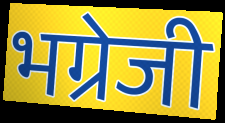
भग्रेजी